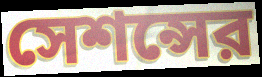
সেশন্সের